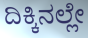
ದಿಕ್ಕಿನಲ್ಲೇ